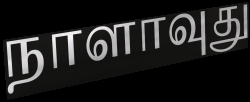
நாளாவுது